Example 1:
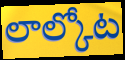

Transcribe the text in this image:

లాల్కోట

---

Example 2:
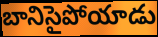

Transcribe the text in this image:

బానిసైపోయాడు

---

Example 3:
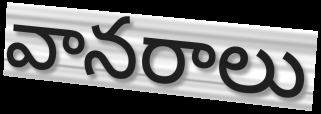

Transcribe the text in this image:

వానరాలు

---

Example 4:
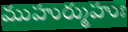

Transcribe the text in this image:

ముహుర్ముహుః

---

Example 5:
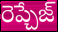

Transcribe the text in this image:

రెప్చేజ్